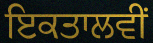
ਇਕਤਾਲਵੀਂ